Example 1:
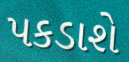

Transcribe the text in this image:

પકડાશે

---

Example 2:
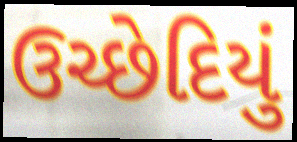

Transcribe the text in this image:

ઉચ્છેદિયું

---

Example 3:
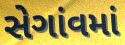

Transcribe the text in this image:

સેગાંવમાં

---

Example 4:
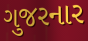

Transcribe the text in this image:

ગુજરનાર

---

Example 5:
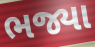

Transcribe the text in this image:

ભજ્યા